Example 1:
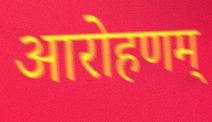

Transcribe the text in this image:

आरोहणम्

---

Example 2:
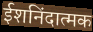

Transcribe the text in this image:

ईशनिंदात्मक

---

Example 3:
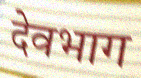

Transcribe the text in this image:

देवभाग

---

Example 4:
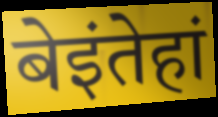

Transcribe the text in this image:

बेइंतेहां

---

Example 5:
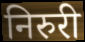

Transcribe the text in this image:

निरुरी